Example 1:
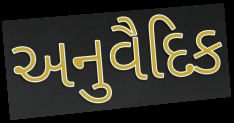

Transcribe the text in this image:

અનુવૈદિક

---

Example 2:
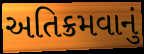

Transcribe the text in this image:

અતિક્રમવાનું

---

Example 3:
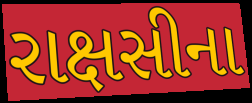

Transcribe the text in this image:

રાક્ષસીના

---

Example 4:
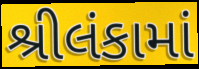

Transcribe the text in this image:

શ્રીલંકામાં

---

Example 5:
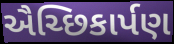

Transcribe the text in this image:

ઐચ્છિકાર્પણ